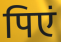
पिएं